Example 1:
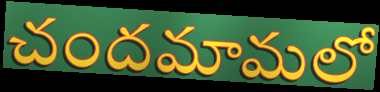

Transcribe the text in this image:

చందమామలో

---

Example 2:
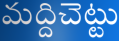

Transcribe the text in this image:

మద్దిచెట్టు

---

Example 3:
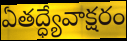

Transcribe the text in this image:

ఏతద్ధ్యేవాక్షరం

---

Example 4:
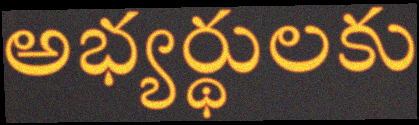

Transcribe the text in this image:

అభ్యర్థులకు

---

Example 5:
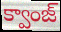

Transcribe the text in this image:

క్వాంజ్